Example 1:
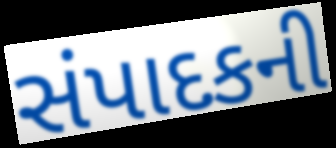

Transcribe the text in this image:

સંપાદકની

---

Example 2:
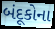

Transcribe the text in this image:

બંદૂકોના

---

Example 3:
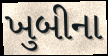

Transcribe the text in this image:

ખુબીના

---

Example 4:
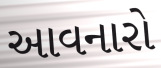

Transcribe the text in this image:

આવનારો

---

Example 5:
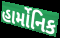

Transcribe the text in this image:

હાર્મોનિક